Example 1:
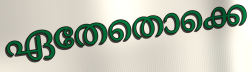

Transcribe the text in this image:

ഏതേതൊക്കെ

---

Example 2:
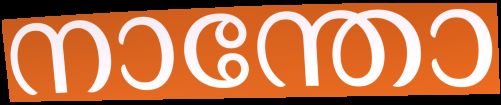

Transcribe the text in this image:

നാന്തോ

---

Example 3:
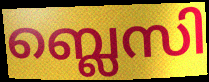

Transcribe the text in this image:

ബ്ലെസി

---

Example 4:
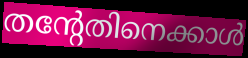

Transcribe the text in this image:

തന്റേതിനെക്കാൾ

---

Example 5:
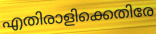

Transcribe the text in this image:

എതിരാളിക്കെതിരേ